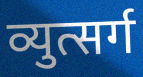
व्युत्सर्ग